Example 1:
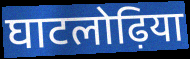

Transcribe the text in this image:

घाटलोढ़िया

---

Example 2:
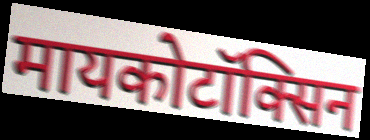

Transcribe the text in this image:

मायकोटॉक्सिन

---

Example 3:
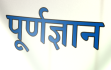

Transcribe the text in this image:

पूर्णज्ञान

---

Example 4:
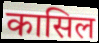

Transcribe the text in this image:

कासिल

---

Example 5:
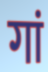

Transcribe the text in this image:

गां